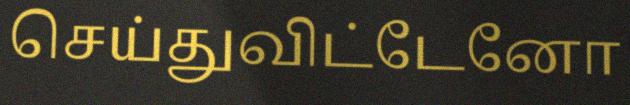
செய்துவிட்டேனோ